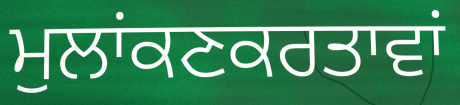
ਮੁਲਾਂਕਣਕਰਤਾਵਾਂ